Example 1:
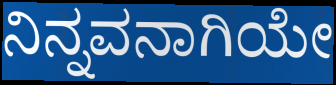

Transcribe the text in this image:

ನಿನ್ನವನಾಗಿಯೇ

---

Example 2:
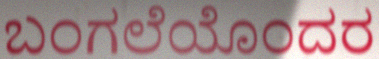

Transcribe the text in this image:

ಬಂಗಲೆಯೊಂದರ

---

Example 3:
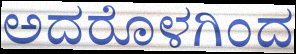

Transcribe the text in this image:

ಅದರೊಳಗಿಂದ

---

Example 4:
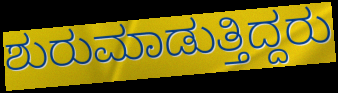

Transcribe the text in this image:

ಶುರುಮಾಡುತ್ತಿದ್ದರು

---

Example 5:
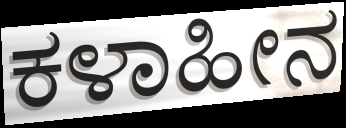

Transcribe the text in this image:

ಕಳಾಹೀನ